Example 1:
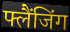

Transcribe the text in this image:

फ्लैंजिंग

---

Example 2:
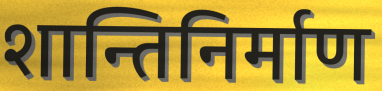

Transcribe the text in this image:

शान्तिनिर्माण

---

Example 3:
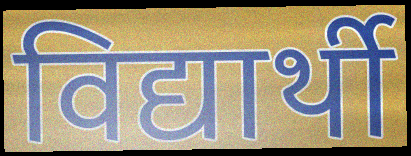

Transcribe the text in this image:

विद्यार्थी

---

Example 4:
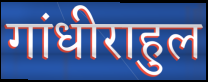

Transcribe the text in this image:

गांधीराहुल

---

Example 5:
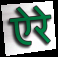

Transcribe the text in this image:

ऐरे